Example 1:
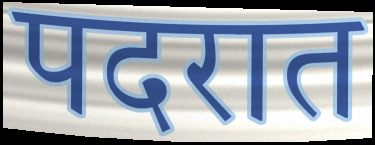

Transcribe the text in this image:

पदरात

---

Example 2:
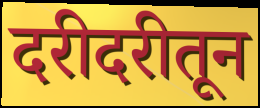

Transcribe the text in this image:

दरीदरीतून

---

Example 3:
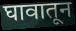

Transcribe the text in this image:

घावातून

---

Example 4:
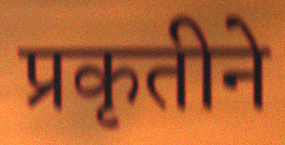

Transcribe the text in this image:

प्रकृतीने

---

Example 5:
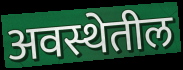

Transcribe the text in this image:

अवस्थेतील